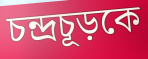
চন্দ্রচূড়কে